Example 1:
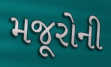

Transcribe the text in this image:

મજૂરોની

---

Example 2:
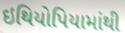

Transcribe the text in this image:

ઇથિયોપિયામાંથી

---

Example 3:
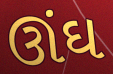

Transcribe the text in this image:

ઊંઘ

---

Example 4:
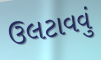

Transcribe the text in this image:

ઉલટાવવું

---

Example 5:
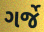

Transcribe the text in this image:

ગર્જે